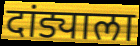
दांड्याला